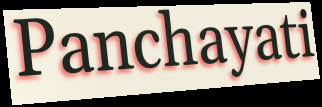
Panchayati